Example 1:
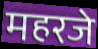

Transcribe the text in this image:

महरजे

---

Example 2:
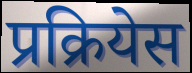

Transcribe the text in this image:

प्रक्रियेस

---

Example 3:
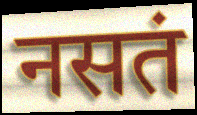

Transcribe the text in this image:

नसतं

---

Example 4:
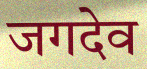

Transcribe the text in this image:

जगदेव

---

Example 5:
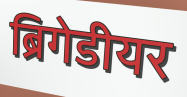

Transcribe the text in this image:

ब्रिगेडीयर